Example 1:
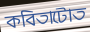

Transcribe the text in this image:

কবিতাটোত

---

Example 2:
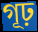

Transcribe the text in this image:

গূঢ়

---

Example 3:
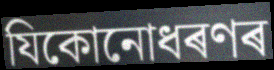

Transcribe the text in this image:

যিকোনোধৰণৰ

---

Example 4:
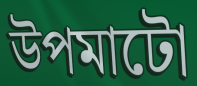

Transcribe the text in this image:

উপমাটো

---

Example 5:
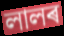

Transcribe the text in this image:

লালৰ